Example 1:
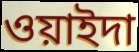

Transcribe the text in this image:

ওয়াইদা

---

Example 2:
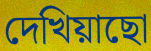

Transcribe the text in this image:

দেখিয়াছো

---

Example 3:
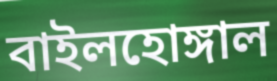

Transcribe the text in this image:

বাইলহোঙ্গাল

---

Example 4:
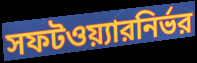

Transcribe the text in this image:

সফটওয়্যারনির্ভর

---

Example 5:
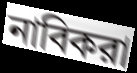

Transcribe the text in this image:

নাবিকরা